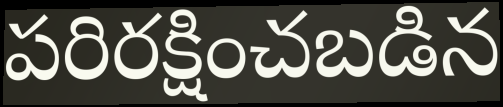
పరిరక్షించబడిన